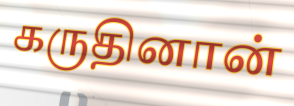
கருதினான்